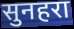
सुनहरा